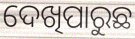
ଦେଖିପାରୁଛ